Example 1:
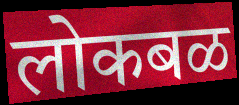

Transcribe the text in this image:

लोकबळ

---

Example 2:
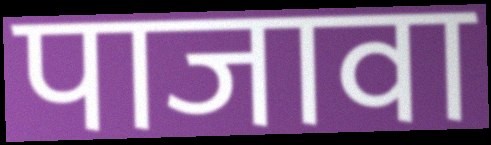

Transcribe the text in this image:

पाजावा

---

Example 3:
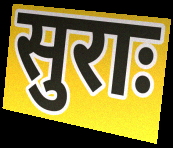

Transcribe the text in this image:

सुराः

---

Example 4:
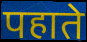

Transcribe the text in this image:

पहाते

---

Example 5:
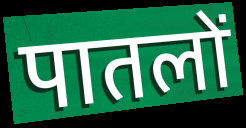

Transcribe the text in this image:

पातलों